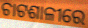
ଚାଟଶାଳୀରେ